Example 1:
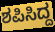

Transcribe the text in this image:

ಶಪಿಸಿದ್ದ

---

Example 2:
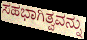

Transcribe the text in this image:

ಸಹಭಾಗಿತ್ವವನ್ನು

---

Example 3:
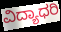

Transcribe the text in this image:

ವಿದ್ಯಾಧರಿ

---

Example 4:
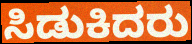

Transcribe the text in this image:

ಸಿಡುಕಿದರು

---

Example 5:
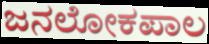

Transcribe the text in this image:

ಜನಲೋಕಪಾಲ